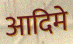
आदिमे